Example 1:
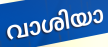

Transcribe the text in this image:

വാശിയാ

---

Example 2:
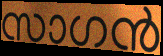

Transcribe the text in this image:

സാഗൻ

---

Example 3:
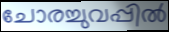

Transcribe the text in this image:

ചോരച്ചുവപ്പിൽ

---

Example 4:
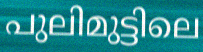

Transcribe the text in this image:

പുലിമുട്ടിലെ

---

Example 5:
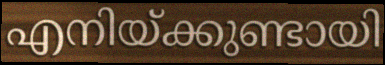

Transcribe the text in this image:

എനിയ്ക്കുണ്ടായി